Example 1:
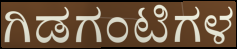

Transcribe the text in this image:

ಗಿಡಗಂಟಿಗಳ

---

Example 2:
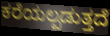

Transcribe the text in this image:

ಕರೆಯಲ್ಪಡುತ್ತದೆ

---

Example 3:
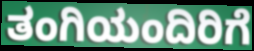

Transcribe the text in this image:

ತಂಗಿಯಂದಿರಿಗೆ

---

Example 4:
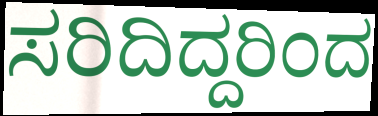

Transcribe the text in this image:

ಸರಿದಿದ್ದರಿಂದ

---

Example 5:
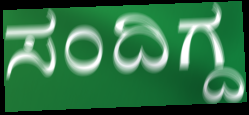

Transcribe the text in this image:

ಸಂದಿಗ್ದ